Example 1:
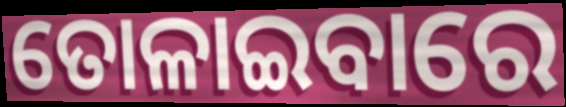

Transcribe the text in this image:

ତୋଳାଇବାରେ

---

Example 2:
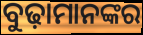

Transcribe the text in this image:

ବୁଢ଼ାମାନଙ୍କର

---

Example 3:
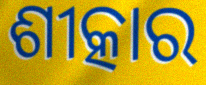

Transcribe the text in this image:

ଶୀତ୍କାର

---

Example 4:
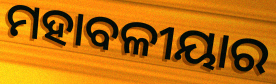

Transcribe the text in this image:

ମହାବଳୀୟାର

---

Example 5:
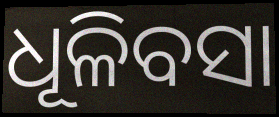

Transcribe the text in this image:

ଧୂଳିବସା